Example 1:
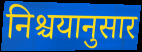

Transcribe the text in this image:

निश्चयानुसार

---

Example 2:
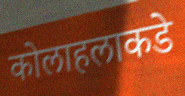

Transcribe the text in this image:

कोलाहलाकडे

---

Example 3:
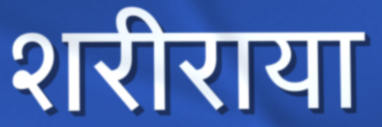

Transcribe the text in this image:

शरीराया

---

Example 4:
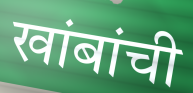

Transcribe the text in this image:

खांबांची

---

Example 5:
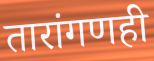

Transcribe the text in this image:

तारांगणही